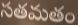
సతమతం